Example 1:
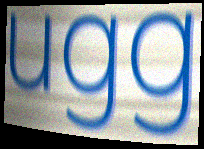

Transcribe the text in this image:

ugg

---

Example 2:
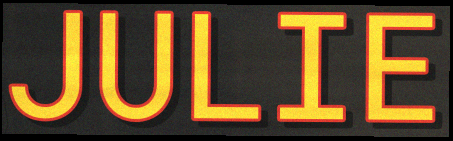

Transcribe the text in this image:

JULIE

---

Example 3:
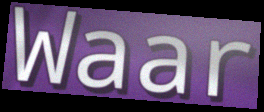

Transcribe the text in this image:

Waar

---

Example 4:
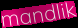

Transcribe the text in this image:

mandlik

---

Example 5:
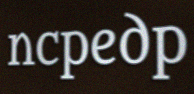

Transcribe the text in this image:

ncpedp